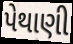
પેથાણી